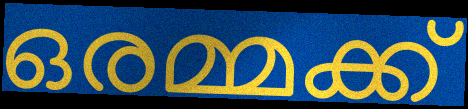
ഒരമ്മക്ക്